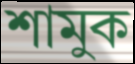
শামুক